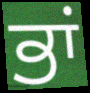
ਭਾਂ